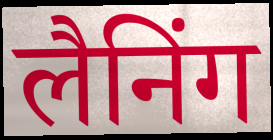
लैनिंग